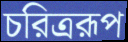
চরিত্ররূপ